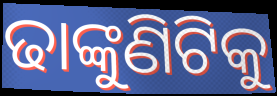
ଢାଙ୍କୁଣିଟିକୁ